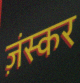
ज़ंस्कर